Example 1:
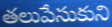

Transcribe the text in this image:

తలుపేసుకుని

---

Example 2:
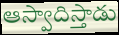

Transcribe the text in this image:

ఆస్వాదిస్తాడు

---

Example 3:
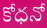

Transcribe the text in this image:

కోధనో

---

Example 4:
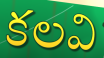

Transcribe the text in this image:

కలవి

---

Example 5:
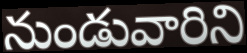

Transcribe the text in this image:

నుండువారిని